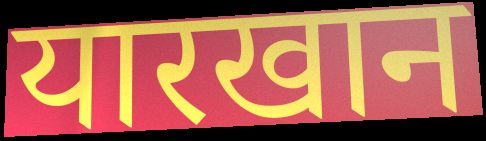
यारखान